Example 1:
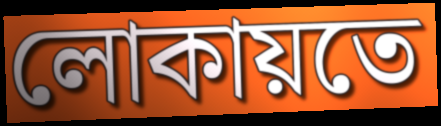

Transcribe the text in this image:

লোকায়তে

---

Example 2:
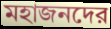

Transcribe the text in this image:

মহাজনদের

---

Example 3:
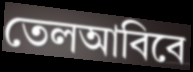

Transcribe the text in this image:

তেলআবিবে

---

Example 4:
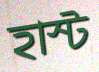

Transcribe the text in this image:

হাস্ট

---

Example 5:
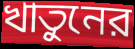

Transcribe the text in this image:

খাতুনের